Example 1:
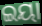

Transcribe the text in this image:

ଇୟା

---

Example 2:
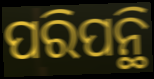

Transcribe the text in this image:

ପରିପନ୍ଥି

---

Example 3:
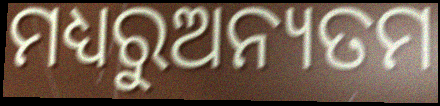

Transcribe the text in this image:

ମଧ୍ୟରୁଅନ୍ୟତମ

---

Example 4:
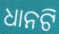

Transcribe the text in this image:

ଧାନଟି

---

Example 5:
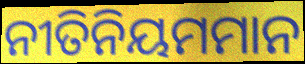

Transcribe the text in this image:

ନୀତିନିୟମମାନ